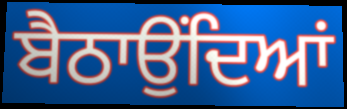
ਬੈਠਾਉਂਦਿਆਂ